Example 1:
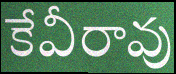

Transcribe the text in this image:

కేవీరావు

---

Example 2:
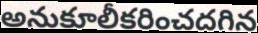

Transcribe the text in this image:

అనుకూలీకరించదగిన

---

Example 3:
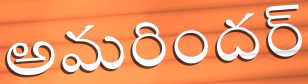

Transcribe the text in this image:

అమరిందర్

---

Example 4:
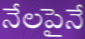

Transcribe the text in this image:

నేలపైనే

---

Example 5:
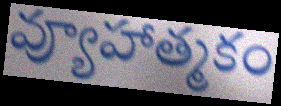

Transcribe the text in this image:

వ్యూహాత్మకం